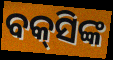
ବକ୍‌ସିଙ୍କ